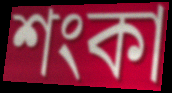
শংকা